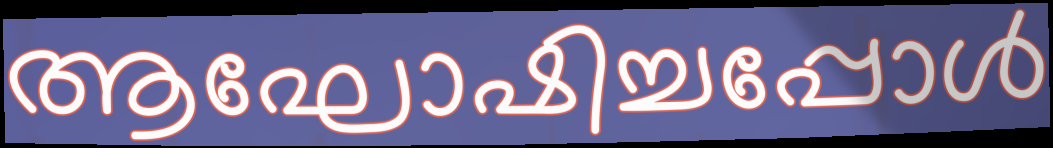
ആഘോഷിച്ചപ്പോൾ